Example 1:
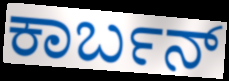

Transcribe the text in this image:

ಕಾರ್ಬನ್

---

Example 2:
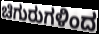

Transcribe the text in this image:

ಚಿಗುರುಗಳಿಂದ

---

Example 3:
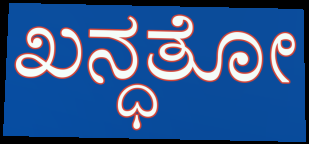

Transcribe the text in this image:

ಖನ್ಧತೋ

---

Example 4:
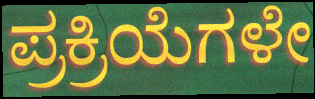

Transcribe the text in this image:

ಪ್ರಕ್ರಿಯೆಗಳೇ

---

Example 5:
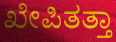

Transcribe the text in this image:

ಖೇಪಿತತ್ತಾ